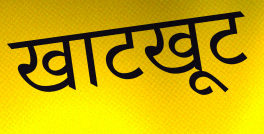
खाटखूट